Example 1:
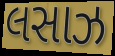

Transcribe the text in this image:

લસાઝ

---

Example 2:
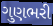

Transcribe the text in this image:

ગુણભરી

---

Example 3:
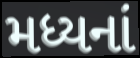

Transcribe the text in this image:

મધ્યનાં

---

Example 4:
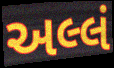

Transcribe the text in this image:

અલ્લં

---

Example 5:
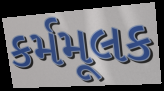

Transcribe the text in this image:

કર્મમૂલક